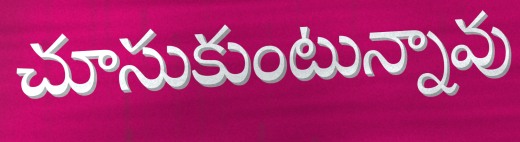
చూసుకుంటున్నావు